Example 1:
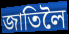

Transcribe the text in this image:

জাতিলৈ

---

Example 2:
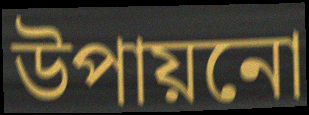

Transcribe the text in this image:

উপায়নো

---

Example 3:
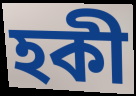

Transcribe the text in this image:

হকী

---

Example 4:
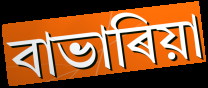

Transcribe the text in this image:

বাভাৰিয়া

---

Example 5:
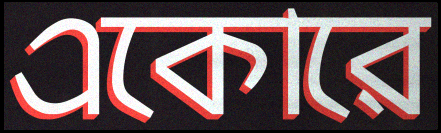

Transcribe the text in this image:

একোৱে